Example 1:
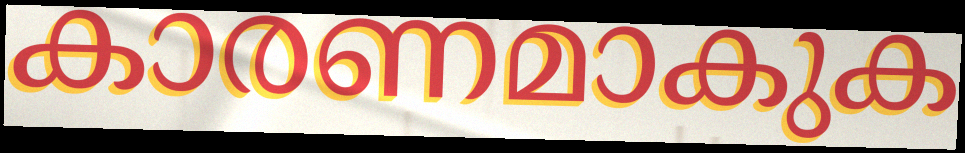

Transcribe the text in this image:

കാരണമാകുക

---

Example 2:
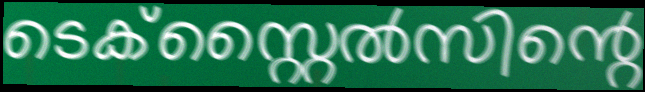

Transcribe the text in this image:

ടെക്സ്റ്റൈൽസിന്റെ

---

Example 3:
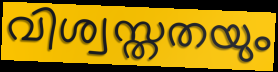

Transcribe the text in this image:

വിശ്വസ്തതയും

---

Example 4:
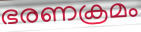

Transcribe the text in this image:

ഭരണക്രമം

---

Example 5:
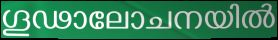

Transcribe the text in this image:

ഗൂഢാലോചനയിൽ